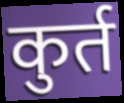
कुर्त